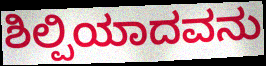
ಶಿಲ್ಪಿಯಾದವನು